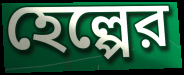
হেল্পের